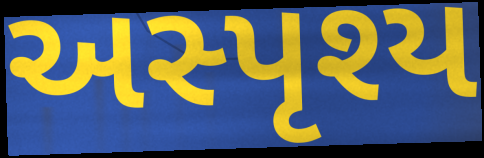
અસ્પૃશ્ય